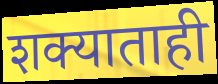
शक्याताही